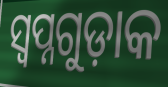
ସ୍ୱପ୍ନଗୁଡ଼ାକ